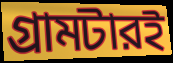
গ্রামটারই